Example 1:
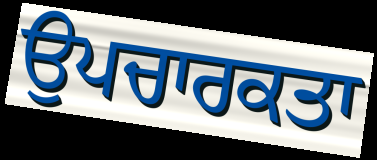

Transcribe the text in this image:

ਉਪਚਾਰਕਤਾ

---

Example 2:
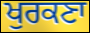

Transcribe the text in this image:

ਖੁਰਕਣਾ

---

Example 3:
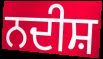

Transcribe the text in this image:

ਨਦੀਸ਼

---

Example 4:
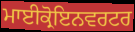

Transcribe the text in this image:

ਮਾਈਕ੍ਰੋਇਨਵਰਟਰ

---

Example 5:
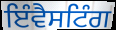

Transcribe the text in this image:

ਇੰਵੈਸਟਿੰਗ